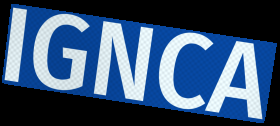
IGNCA